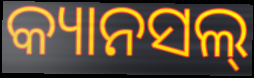
କ୍ୟାନସଲ୍